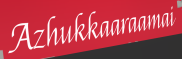
Azhukkaaraamai